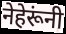
नेहेरूंनी